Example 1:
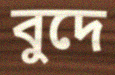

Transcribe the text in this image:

বুদে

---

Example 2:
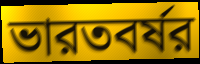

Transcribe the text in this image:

ভারতবর্ষর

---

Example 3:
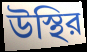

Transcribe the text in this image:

উস্থির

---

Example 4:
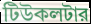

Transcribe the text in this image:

টিউকলটার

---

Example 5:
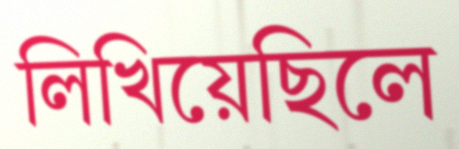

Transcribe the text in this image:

লিখিয়েছিলে